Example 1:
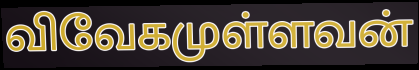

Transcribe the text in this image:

விவேகமுள்ளவன்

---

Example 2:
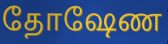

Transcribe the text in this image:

தோஷேண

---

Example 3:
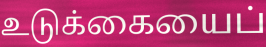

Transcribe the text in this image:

உடுக்கையைப்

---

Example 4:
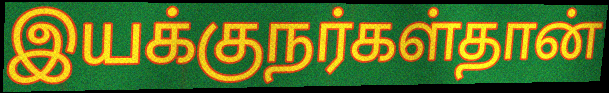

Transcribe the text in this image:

இயக்குநர்கள்தான்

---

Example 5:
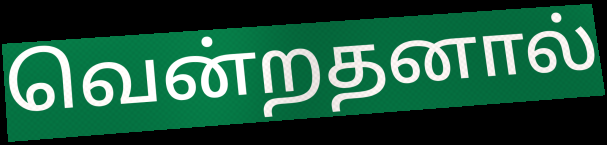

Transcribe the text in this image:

வென்றதனால்